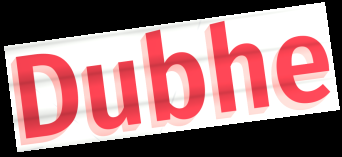
Dubhe